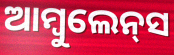
ଆମ୍ବୁଲେନ୍‍ସ